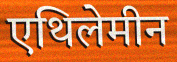
एथिलेमीन